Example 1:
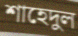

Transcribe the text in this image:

শাহেদুল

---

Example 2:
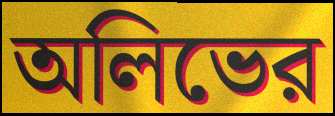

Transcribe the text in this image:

অলিভের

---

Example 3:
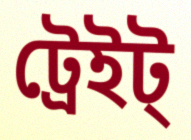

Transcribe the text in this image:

ট্রেইট্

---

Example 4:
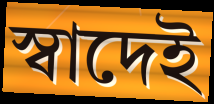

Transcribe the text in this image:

স্বাদেই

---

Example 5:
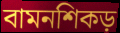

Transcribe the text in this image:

বামনশিকড়